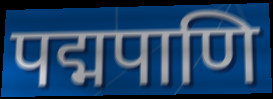
पद्मपाणि